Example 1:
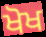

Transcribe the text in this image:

ਖੋਖ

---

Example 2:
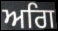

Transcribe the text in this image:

ਅਗਿ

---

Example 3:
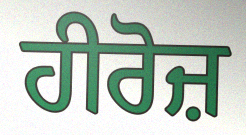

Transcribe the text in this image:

ਹੀਰੋਜ਼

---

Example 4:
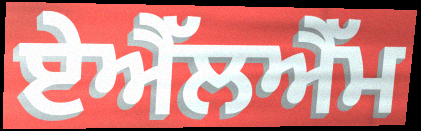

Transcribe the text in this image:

ਏਐੱਲਐੱਮ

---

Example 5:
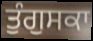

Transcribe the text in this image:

ਤੁੰਗੁਸਕਾ